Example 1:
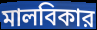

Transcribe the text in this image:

মালবিকার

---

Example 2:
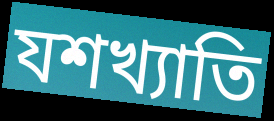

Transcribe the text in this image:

যশখ্যাতি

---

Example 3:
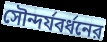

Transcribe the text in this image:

সৌন্দর্যবর্ধনের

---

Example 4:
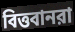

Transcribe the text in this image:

বিত্তবানরা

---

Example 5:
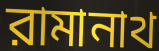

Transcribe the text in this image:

রামানাথ